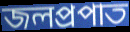
জলপ্রপাত